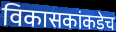
विकासकांकडेच